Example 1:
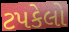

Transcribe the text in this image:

ટપકેલો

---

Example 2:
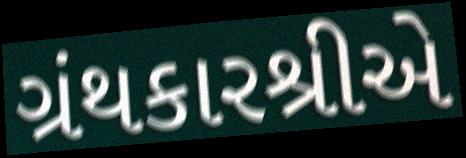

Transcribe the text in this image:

ગ્રંથકારશ્રીએ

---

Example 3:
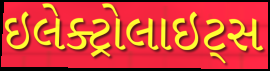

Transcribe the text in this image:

ઇલેક્ટ્રોલાઇટ્સ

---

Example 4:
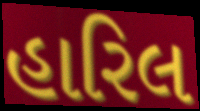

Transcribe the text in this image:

હારિલ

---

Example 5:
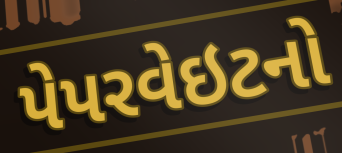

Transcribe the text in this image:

પેપરવેઇટનો